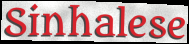
Sinhalese